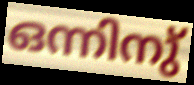
ഒന്നിനു്